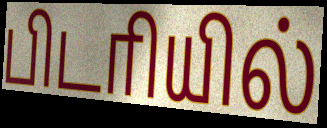
பிடரியில்